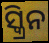
ସ୍କ୍ରିନ